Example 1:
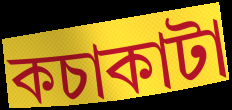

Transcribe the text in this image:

কচাকাটা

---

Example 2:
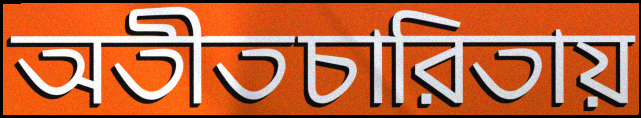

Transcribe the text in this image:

অতীতচারিতায়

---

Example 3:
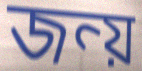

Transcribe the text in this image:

জন্য়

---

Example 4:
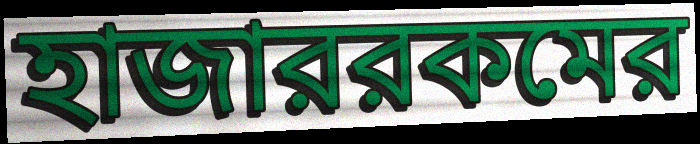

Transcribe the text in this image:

হাজাররকমের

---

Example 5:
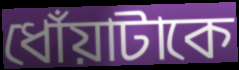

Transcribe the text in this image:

ধোঁয়াটাকে